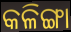
କଳିଙ୍ଗା